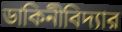
ডাকিনীবিদ্যার